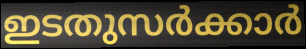
ഇടതുസർക്കാർ